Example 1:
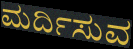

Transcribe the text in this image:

ಮರ್ದಿಸುವ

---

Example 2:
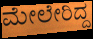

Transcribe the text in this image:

ಮೇಲೇರಿದ್ದ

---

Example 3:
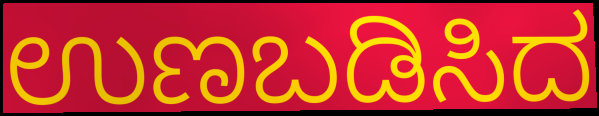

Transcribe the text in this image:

ಉಣಬಡಿಸಿದ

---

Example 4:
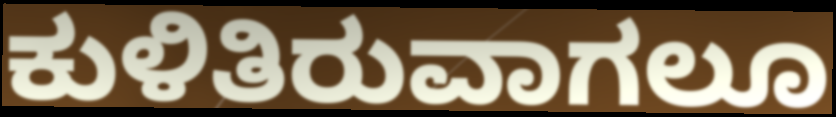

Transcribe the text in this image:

ಕುಳಿತಿರುವಾಗಲೂ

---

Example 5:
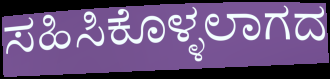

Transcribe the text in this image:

ಸಹಿಸಿಕೊಳ್ಳಲಾಗದ